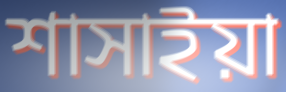
শাসাইয়া